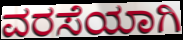
ವರಸೆಯಾಗಿ